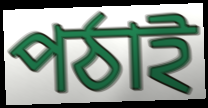
পঠাই